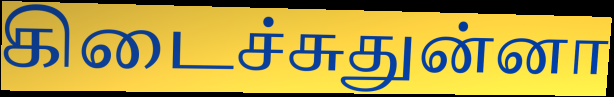
கிடைச்சுதுன்னா